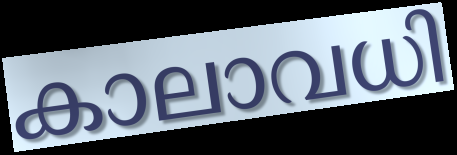
കാലാവധി